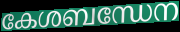
കേശബന്ധേന